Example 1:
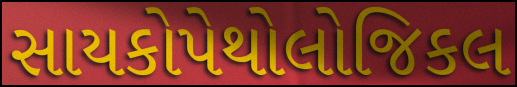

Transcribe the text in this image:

સાયકોપેથોલોજિકલ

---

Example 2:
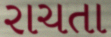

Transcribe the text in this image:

રાચતા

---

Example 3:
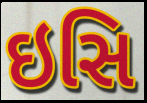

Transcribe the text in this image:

ઇસિ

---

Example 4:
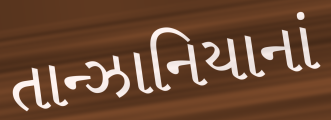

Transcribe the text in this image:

તાન્ઝાનિયાનાં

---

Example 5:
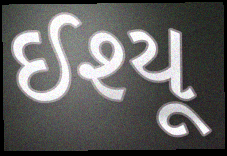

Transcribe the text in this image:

ઈશ્યૂ